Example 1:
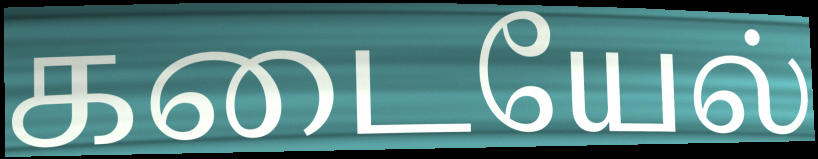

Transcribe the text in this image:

கடையேல்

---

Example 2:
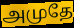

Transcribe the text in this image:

அமுதே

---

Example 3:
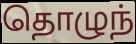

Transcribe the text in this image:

தொழுந்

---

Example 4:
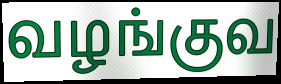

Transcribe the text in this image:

வழங்குவ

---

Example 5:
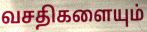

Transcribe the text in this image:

வசதிகளையும்